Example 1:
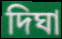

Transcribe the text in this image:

দিঘা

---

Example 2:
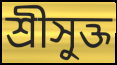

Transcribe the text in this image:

শ্রীসুক্ত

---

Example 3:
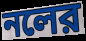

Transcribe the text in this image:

নলের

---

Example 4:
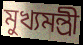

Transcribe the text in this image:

মুখ্যমন্ত্রী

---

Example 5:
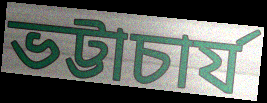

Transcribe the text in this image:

ভট্টাচার্য